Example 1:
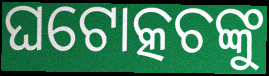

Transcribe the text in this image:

ଘଟୋତ୍କଚଙ୍କୁ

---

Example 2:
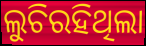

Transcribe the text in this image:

ଲୁଚିରହିଥିଲା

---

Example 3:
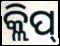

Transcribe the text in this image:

କ୍ଲିପ୍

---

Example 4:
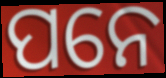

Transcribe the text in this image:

ପନେ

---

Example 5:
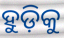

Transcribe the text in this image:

ହୁଡ଼ିକୁ